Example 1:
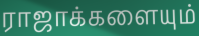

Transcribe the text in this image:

ராஜாக்களையும்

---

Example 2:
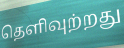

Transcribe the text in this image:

தெளிவுற்றது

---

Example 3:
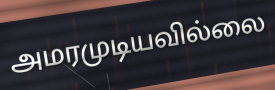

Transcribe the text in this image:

அமரமுடியவில்லை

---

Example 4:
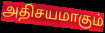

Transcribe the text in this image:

அதிசயமாகும்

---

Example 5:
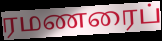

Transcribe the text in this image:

ரமணரைப்